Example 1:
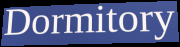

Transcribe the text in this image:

Dormitory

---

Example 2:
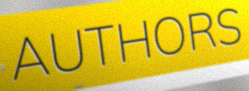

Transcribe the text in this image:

AUTHORS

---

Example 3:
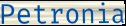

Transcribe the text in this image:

Petronia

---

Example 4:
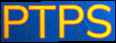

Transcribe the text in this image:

PTPS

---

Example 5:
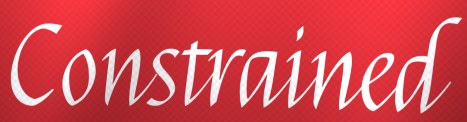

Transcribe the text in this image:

Constrained